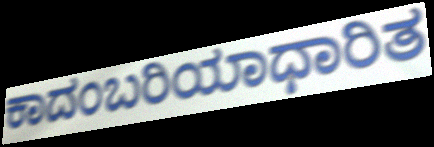
ಕಾದಂಬರಿಯಾಧಾರಿತ